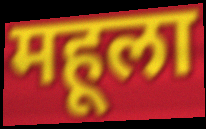
महूला